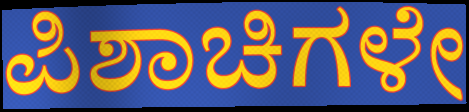
ಪಿಶಾಚಿಗಳೇ